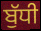
ਬੁੱਧੀ